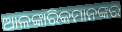
ଆଳଙ୍କାରିକମାନଙ୍କର